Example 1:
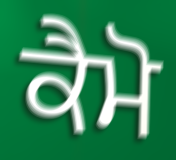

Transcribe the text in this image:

ਕੈਮੋ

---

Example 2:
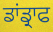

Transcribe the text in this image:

ਡਾਂਡ੍ਰਾਫ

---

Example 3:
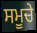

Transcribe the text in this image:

ਸਮੂਚੇ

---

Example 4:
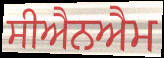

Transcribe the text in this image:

ਸੀਐਨਐਮ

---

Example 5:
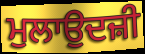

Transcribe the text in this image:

ਮੁਲਾਉਦਜ਼ੀ